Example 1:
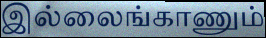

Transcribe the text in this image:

இல்லைங்காணும்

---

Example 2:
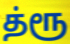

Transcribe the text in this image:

த்ரூ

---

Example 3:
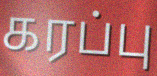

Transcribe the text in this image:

கரப்பு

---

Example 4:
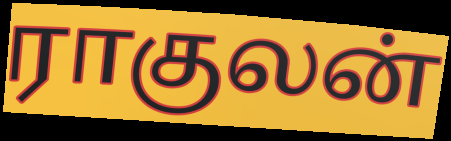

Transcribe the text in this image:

ராகுலன்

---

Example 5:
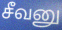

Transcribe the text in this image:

சீவனு